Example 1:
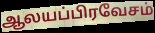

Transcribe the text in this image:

ஆலயப்பிரவேசம்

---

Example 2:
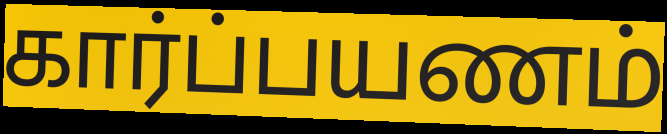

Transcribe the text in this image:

கார்ப்பயணம்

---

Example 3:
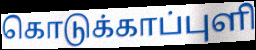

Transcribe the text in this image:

கொடுக்காப்புளி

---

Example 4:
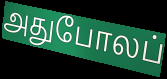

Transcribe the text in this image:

அதுபோலப்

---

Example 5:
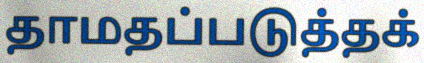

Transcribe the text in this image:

தாமதப்படுத்தக்